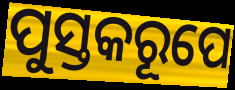
ପୁସ୍ତକରୂପେ